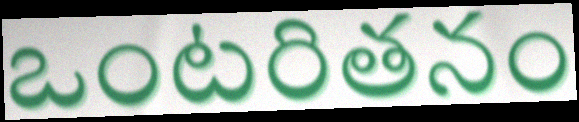
ఒంటరితనం